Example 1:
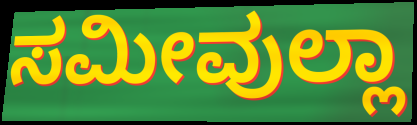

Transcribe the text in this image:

ಸಮೀವುಲ್ಲಾ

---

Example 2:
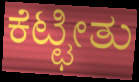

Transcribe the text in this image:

ಕೆಟ್ಟೀತು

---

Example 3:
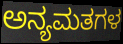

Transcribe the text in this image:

ಅನ್ಯಮತಗಳ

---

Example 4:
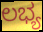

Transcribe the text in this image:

ಲಭ್ಯ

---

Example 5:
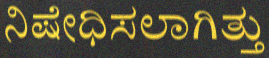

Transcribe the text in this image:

ನಿಷೇಧಿಸಲಾಗಿತ್ತು